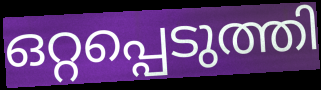
ഒറ്റപ്പെടുത്തി